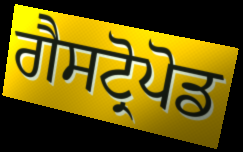
ਗੈਸਟ੍ਰੋਪੋਡ